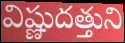
విష్ణుదత్తుని